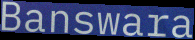
Banswara